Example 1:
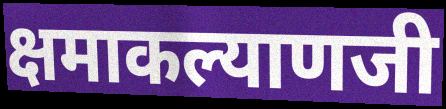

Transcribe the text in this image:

क्षमाकल्याणजी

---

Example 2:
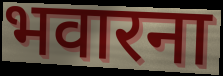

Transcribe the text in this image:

भवारना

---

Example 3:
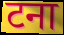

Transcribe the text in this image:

टना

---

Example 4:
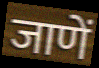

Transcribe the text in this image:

जाणें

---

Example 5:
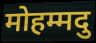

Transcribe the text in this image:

मोहम्मदु